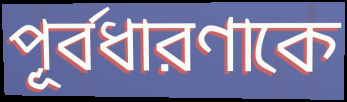
পূর্বধারণাকে